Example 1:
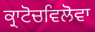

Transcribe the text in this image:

ਕ੍ਰਾਟੋਚਵਿਲੋਵਾ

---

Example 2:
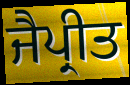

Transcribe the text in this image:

ਜੈਪ੍ਰੀਤ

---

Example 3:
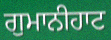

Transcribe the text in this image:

ਗੁਮਾਨੀਹਾਟ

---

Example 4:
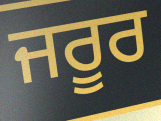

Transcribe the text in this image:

ਜਰੂਰ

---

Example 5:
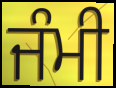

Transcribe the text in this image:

ਜੰਮੀ